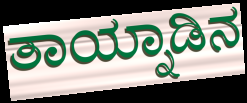
ತಾಯ್ನಾಡಿನ